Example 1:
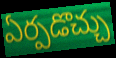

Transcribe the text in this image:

ఏర్పడొచ్చు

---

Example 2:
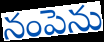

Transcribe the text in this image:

నంపెను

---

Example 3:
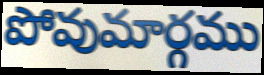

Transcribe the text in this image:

పోవుమార్గము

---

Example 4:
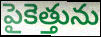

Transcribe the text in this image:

పైకెత్తును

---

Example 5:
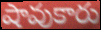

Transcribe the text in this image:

షావుకారు